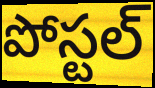
పోస్టల్